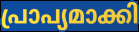
പ്രാപ്യമാക്കി